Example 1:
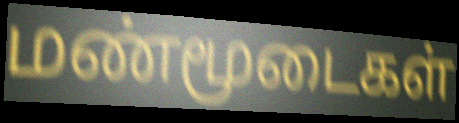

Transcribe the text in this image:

மண்மூடைகள்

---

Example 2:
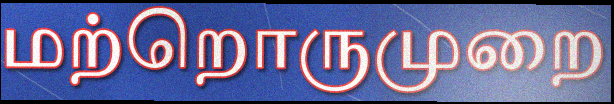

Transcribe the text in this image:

மற்றொருமுறை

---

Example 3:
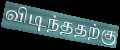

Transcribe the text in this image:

விடிந்ததற்கு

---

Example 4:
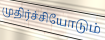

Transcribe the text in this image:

முதிர்ச்சியோடும்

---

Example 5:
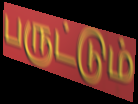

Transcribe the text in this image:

பருட்டும்